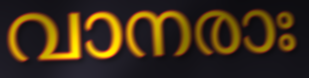
വാനരാഃ